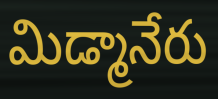
మిడ్మానేరు